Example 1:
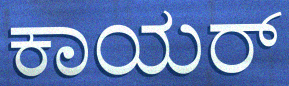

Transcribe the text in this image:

ಕಾಯರ್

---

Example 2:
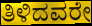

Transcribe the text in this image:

ತಿಳಿದವರೇ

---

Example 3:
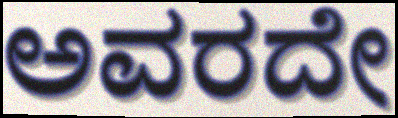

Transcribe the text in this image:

ಅವರದೇ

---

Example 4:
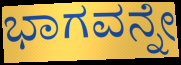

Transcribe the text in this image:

ಭಾಗವನ್ನೇ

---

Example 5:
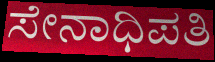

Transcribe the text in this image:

ಸೇನಾಧಿಪತಿ